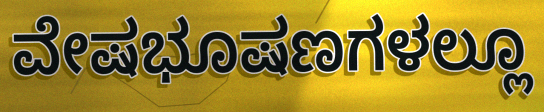
ವೇಷಭೂಷಣಗಳಲ್ಲೂ